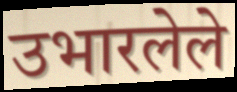
उभारलेले